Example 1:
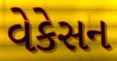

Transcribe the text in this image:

વેકેસન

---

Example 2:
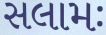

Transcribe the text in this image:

સલામઃ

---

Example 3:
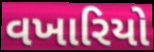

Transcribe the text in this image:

વખારિયો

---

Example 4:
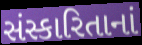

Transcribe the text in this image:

સંસ્કારિતાનાં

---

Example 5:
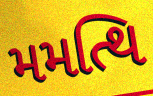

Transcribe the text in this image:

મમત્થિ